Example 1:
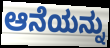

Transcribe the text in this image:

ಆನೆಯನ್ನು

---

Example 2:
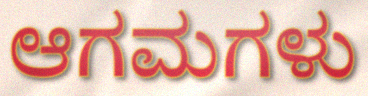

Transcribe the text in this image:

ಆಗಮಗಳು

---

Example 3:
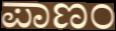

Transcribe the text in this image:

ಪಾಣಂ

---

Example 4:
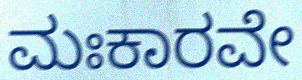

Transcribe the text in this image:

ಮಃಕಾರವೇ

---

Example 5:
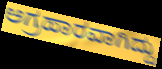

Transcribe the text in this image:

ಅಗ್ರಹಾರವಾಗಿದ್ದು